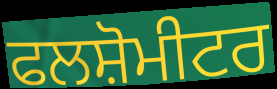
ਫਲਸ਼ੋਮੀਟਰ